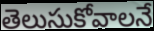
తెలుసుకోవాలనే